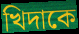
খিদাকে